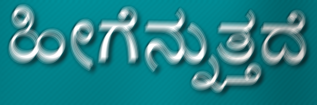
ಹೀಗೆನ್ನುತ್ತದೆ